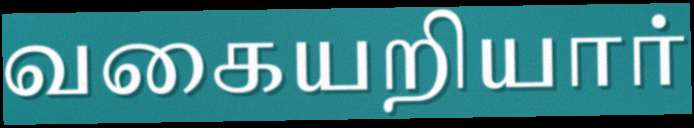
வகையறியார்